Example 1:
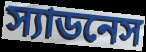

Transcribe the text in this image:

স্যাডনেস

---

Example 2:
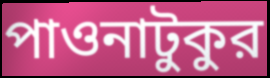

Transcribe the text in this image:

পাওনাটুকুর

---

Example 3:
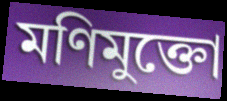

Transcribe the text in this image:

মণিমুক্তো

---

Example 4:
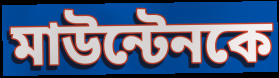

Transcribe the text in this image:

মাউন্টেনকে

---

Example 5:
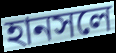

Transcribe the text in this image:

হানসলে